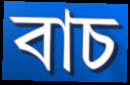
বাচ